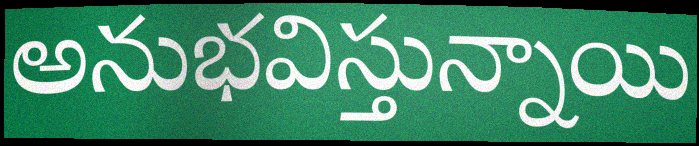
అనుభవిస్తున్నాయి